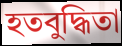
হতবুদ্ধিতা